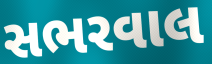
સભરવાલ